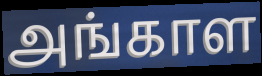
அங்காள